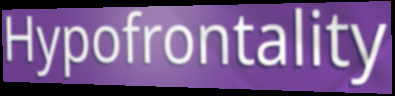
Hypofrontality